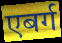
एबर्ग